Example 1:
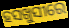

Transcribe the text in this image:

ହସଖୁସୀରେ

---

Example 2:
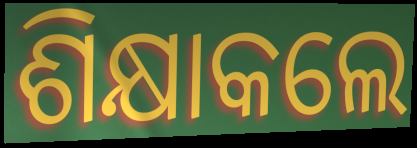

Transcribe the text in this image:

ଶିକ୍ଷାକଲେ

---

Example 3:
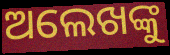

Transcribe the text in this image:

ଅଲେଖଙ୍କୁ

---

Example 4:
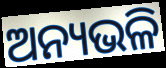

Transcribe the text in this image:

ଅନ୍ୟଭଳି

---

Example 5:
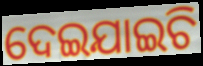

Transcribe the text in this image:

ଦେଇଯାଇଚି